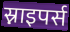
स्नाइपर्स